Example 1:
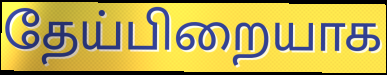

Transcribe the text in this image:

தேய்பிறையாக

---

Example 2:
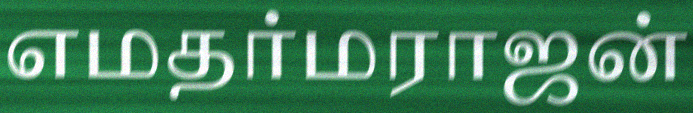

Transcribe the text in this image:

எமதர்மராஜன்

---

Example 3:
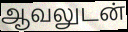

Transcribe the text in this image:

ஆவலுடன்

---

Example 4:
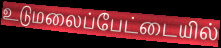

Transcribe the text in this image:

உடுமலைப்பேட்டையில்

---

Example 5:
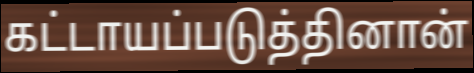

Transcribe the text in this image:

கட்டாயப்படுத்தினான்